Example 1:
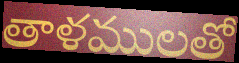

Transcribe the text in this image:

తాళములతో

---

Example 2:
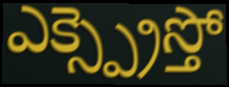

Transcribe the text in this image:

ఎక్స్ప్రెస్తో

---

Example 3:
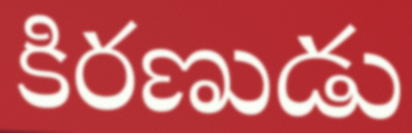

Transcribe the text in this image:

కిరణుడు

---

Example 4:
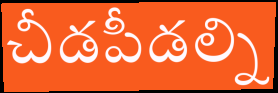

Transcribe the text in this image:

చీడపీడల్ని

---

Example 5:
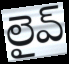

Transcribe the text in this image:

లైవ్